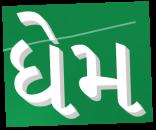
ધેમ